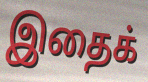
இதைக்